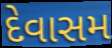
દેવાસમ